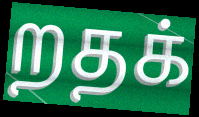
றதக்